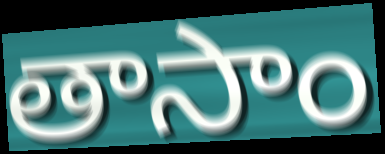
తాసాం